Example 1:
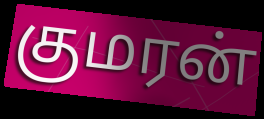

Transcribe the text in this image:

குமரன்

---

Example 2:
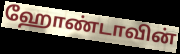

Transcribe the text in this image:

ஹோண்டாவின்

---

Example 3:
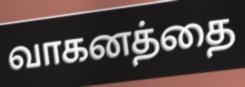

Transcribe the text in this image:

வாகனத்தை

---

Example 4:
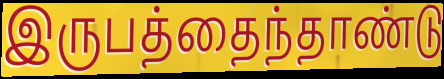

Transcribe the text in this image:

இருபத்தைந்தாண்டு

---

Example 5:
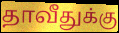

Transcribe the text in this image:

தாவீதுக்கு